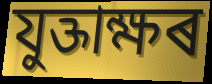
যুক্তাক্ষৰ